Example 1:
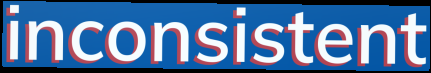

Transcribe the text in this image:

inconsistent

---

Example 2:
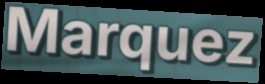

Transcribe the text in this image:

Marquez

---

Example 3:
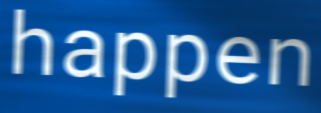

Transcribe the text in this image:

happen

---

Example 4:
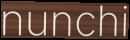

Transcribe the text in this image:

nunchi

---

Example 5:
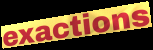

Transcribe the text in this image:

exactions